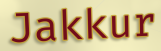
Jakkur